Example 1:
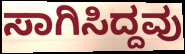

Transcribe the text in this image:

ಸಾಗಿಸಿದ್ದವು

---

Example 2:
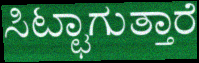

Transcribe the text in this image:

ಸಿಟ್ಟಾಗುತ್ತಾರೆ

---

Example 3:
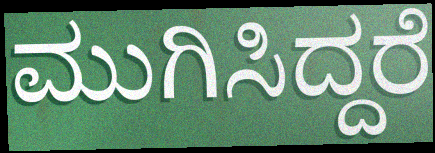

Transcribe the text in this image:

ಮುಗಿಸಿದ್ದರೆ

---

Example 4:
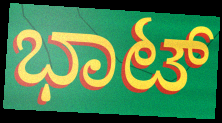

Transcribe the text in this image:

ಭಾಟ್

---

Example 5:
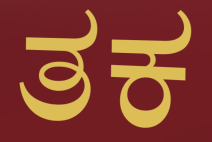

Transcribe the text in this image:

ತಕ